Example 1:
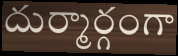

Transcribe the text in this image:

దుర్మార్గంగా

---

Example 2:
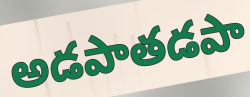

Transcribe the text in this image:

అడపాతడపా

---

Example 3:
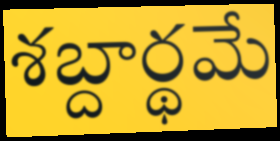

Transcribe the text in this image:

శబ్దార్థమే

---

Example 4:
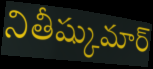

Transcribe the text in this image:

నితీష్కుమార్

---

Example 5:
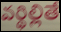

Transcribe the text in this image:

వర్థిల్లితే